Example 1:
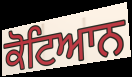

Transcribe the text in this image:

ਕੋਟਿਆਨ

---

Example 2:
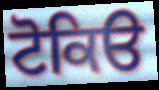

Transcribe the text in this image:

ਟੋਕਿੳ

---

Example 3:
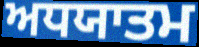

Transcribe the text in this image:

ਅਧਯਾਤਮ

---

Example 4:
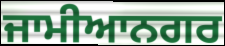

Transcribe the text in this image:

ਜਾਮੀਆਨਗਰ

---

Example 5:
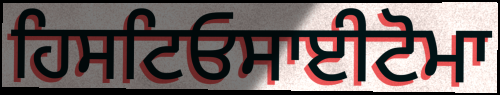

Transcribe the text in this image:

ਹਿਸਟਿਓਸਾਈਟੋਮਾ